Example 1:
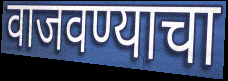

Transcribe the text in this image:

वाजवण्याचा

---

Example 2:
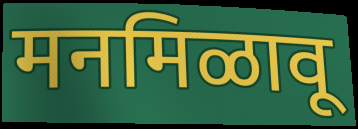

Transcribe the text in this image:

मनमिळावू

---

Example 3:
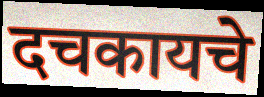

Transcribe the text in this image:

दचकायचे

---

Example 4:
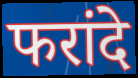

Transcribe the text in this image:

फरांदे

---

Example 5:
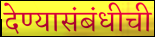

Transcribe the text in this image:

देण्यासंबंधीची